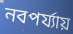
নবপর্য্যায়